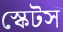
স্কেটস